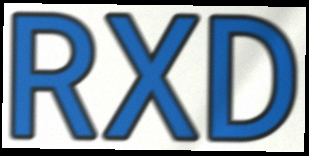
RXD